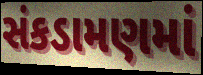
સંકડામણમાં